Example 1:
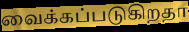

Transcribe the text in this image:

வைக்கப்படுகிறதா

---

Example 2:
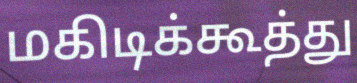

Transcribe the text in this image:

மகிடிக்கூத்து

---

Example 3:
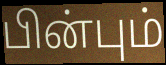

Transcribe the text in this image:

பின்பும்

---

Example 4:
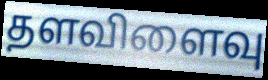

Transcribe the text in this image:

தளவிளைவு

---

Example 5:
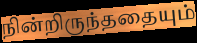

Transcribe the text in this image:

நின்றிருந்ததையும்